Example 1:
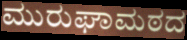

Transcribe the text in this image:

ಮುರುಘಾಮಠದ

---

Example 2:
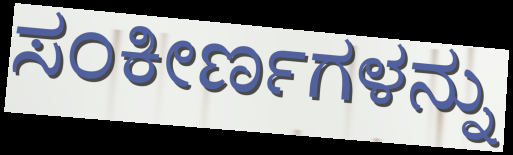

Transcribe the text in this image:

ಸಂಕೀರ್ಣಗಳನ್ನು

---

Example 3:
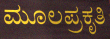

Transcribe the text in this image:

ಮೂಲಪ್ರಕೃತಿ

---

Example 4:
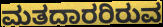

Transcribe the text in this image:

ಮತದಾರರಿರುವ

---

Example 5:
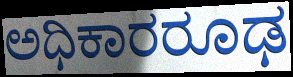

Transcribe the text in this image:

ಅಧಿಕಾರರೂಢ